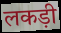
लकड़ी